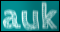
auk